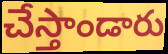
చేస్తాండారు